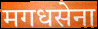
मगधसेना